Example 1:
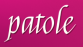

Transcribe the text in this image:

patole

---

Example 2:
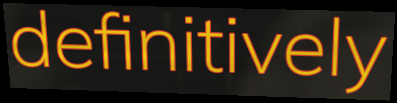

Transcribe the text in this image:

definitively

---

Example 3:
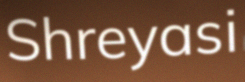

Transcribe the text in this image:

Shreyasi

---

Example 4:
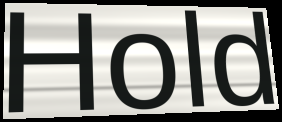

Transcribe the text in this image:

Hold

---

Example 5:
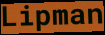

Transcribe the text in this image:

Lipman